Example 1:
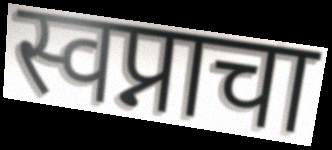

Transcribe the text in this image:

स्वप्नाचा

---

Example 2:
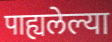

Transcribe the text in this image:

पाह्यलेल्या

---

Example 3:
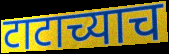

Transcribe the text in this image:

टाटाच्याच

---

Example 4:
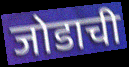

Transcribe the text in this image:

जोडाची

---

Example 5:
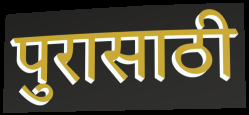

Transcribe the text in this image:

पुरासाठी